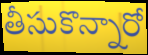
తీసుకొన్నారో